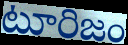
టూరిజం